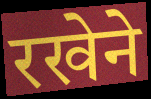
रखेने